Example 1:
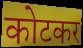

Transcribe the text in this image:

कोटकर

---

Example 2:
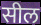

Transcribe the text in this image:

सील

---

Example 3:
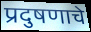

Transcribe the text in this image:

प्रदुषणाचे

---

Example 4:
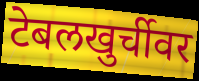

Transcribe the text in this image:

टेबलखुर्चीवर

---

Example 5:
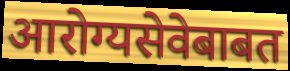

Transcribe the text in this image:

आरोग्यसेवेबाबत